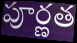
పూర్ణత